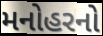
મનોહરનો